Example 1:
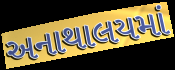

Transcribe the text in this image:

અનાથાલયમાં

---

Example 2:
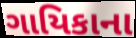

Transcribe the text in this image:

ગાયિકાના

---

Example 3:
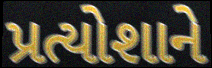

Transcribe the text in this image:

પ્રત્યોશાને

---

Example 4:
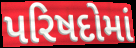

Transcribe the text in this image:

પરિષદોમાં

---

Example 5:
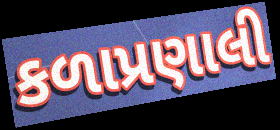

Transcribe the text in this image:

કળાપ્રણાલી